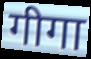
गीगा